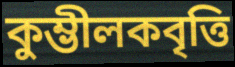
কুম্ভীলকবৃত্তি